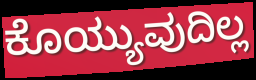
ಕೊಯ್ಯುವುದಿಲ್ಲ